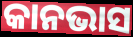
କାନଭାସ